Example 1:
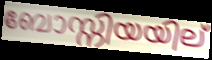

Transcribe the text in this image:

ബോസ്നിയയില്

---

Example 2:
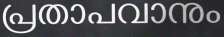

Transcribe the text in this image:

പ്രതാപവാനും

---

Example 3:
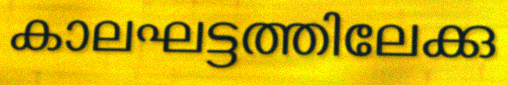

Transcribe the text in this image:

കാലഘട്ടത്തിലേക്കു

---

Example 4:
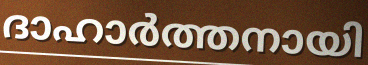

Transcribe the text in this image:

ദാഹാർത്തനായി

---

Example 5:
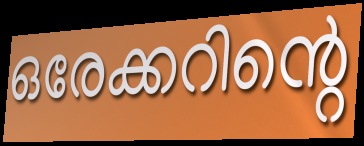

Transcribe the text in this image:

ഒരേക്കറിന്റെ